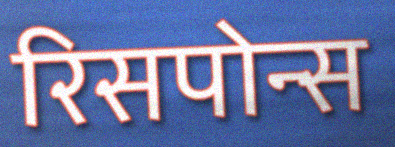
रिसपोन्स